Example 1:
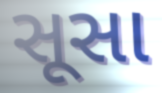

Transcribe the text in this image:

સૂસા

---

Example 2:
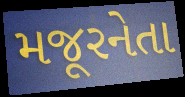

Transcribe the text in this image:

મજૂરનેતા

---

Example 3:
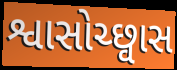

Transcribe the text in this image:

શ્વાસોચ્છ્વાસ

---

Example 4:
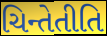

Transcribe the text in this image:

ચિન્તેતીતિ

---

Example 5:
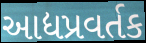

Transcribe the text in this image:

આદ્યપ્રવર્તક